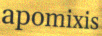
apomixis